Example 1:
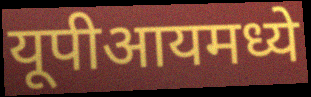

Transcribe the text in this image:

यूपीआयमध्ये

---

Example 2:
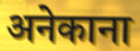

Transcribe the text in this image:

अनेकाना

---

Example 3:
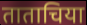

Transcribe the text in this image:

ताताचिया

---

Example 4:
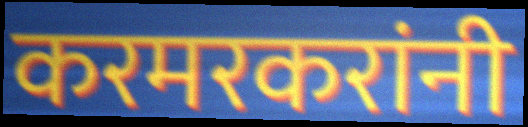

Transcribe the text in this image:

करमरकरांनी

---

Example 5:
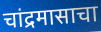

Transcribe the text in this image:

चांद्रमासाचा